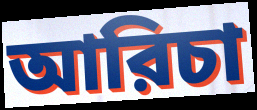
আরিচা